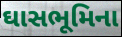
ઘાસભૂમિના